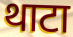
थाटा